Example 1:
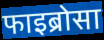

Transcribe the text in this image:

फाइब्रोसा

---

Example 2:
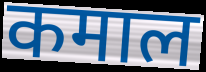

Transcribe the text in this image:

कमाल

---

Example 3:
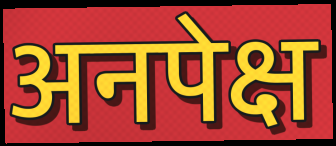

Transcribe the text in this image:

अनपेक्ष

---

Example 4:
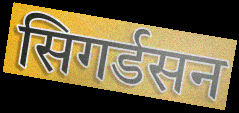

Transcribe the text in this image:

सिगर्डसन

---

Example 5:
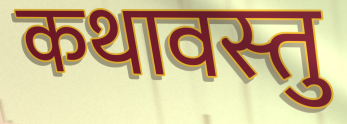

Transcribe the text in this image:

कथावस्‍तु